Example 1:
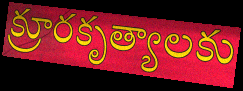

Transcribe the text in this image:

క్రూరకృత్యాలకు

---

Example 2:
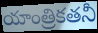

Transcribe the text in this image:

యాంత్రికతనీ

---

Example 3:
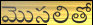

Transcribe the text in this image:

మొసలితో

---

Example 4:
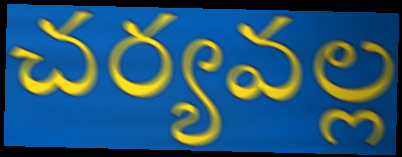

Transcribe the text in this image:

చర్యవల్ల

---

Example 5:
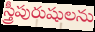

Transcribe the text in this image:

స్త్రీపురుషులను